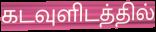
கடவுளிடத்தில்